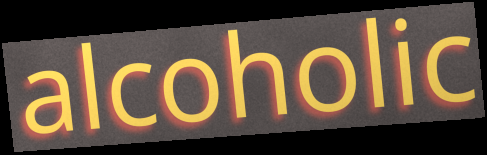
alcoholic